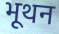
भूथन